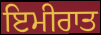
ਇਮੀਰਾਤ